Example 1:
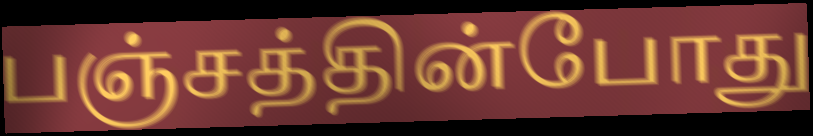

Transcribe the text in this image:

பஞ்சத்தின்போது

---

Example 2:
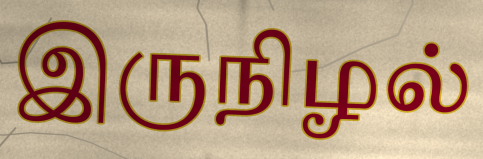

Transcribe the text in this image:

இருநிழல்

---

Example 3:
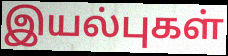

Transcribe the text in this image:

இயல்புகள்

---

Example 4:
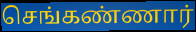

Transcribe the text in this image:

செங்கண்ணார்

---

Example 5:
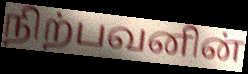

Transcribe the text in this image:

நிற்பவனின்